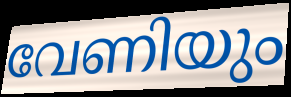
വേണിയും